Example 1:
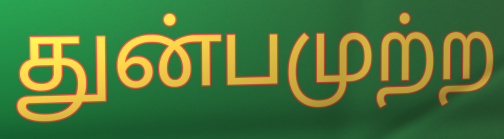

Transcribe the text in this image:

துன்பமுற்ற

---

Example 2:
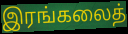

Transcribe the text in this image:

இரங்கலைத்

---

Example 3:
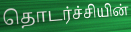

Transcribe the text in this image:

தொடர்ச்சியின்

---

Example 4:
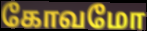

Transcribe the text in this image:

கோவமோ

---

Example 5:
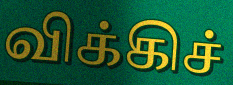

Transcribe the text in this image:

விக்கிச்